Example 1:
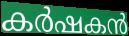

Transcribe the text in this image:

കർഷകൻ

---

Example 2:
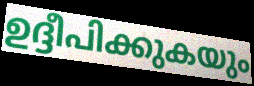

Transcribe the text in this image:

ഉദ്ദീപിക്കുകയും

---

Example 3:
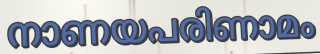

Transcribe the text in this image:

നാണയപരിണാമം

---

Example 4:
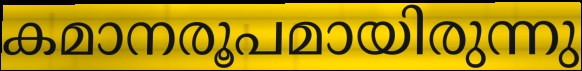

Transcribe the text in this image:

കമാനരൂപമായിരുന്നു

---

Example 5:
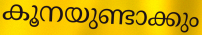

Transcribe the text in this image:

കൂനയുണ്ടാക്കും